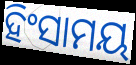
ହିଂସାମୟ